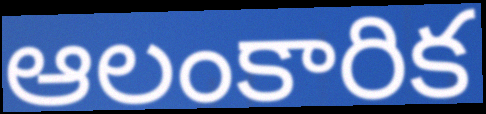
ఆలంకారిక